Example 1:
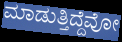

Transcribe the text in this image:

ಮಾಡುತ್ತಿದ್ದೆವೋ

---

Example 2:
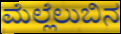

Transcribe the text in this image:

ಮೆಲ್ಲೆಲುಬಿನ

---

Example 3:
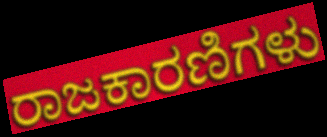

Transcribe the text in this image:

ರಾಜಕಾರಣಿಗಳು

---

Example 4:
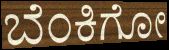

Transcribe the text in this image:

ಬೆಂಕಿಗೋ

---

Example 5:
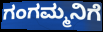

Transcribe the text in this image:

ಗಂಗಮ್ಮನಿಗೆ